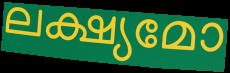
ലക്ഷ്യമോ